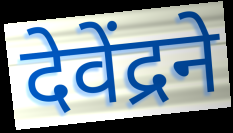
देवेंद्रने